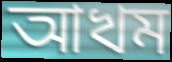
আখম